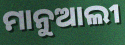
ମାନୁଆଲୀ